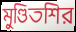
মুণ্ডিতশির